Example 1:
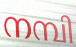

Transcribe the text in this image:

നമ്പി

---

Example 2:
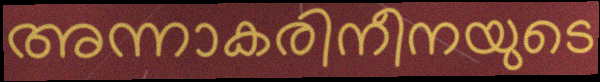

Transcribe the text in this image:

അന്നാകരിനീനയുടെ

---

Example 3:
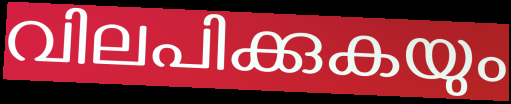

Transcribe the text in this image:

വിലപിക്കുകയും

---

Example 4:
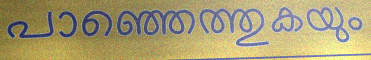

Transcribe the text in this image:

പാഞ്ഞെത്തുകയും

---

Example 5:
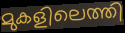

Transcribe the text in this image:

മുകളിലെത്തി